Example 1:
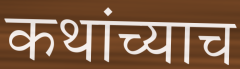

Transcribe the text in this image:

कथांच्याच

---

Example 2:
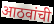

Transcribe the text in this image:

आठवांची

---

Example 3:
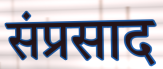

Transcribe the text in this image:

संप्रसाद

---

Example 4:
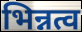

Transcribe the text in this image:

भिन्नत्व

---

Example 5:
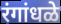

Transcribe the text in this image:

रंगांधळे